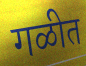
गळीत